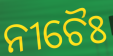
ନୀଚୈଃ